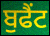
ਬੁਫੈਂਟ